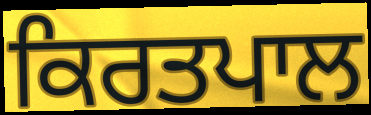
ਕਿਰਤਪਾਲ